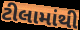
ટીલામાંથી